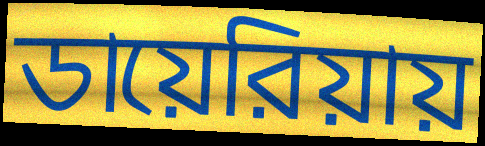
ডায়েরিয়ায়